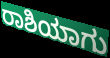
ರಾಶಿಯಾಗು